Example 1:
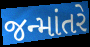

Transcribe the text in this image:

જન્માંતરે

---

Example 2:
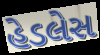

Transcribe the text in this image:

હેડલેસ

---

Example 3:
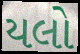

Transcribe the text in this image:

યલો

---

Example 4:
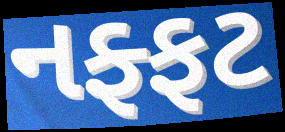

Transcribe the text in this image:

નફ્ફટ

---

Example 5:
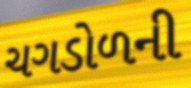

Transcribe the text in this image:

ચગડોળની